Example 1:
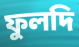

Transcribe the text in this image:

ফুলদি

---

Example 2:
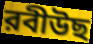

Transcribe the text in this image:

রবীউছ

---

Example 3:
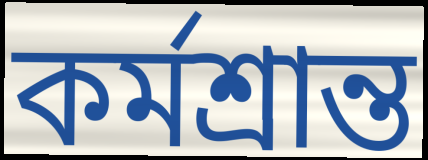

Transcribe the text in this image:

কর্মশ্রান্ত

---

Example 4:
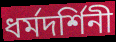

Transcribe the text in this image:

ধর্মদর্শিনী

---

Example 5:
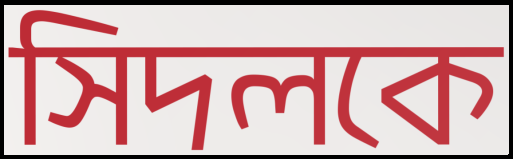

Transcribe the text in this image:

সিদলকে